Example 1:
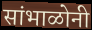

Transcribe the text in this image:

सांभाळोनी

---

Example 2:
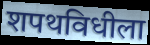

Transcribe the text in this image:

शपथविधीला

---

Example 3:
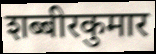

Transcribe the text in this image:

शब्बीरकुमार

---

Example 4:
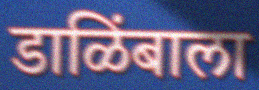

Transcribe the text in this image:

डाळिंबाला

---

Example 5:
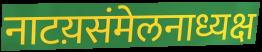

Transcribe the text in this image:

नाटय़संमेलनाध्यक्ष